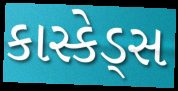
કાસ્કેડ્સ